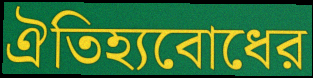
ঐতিহ্যবোধের